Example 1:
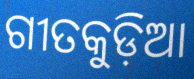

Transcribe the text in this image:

ଗୀତକୁଡ଼ିଆ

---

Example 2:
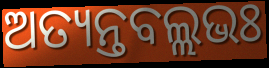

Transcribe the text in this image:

ଅତ୍ୟନ୍ତବଲ୍ଲଭଃ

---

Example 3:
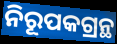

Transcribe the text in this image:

ନିରୂପକଗ୍ରନ୍ଥ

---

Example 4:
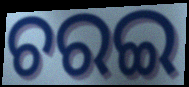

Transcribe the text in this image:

ଚରଇ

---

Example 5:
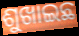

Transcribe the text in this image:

ଶୁଖାଇଛ